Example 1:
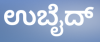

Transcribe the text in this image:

ಉಬೈದ್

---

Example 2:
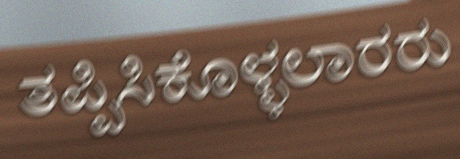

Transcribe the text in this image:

ತಪ್ಪಿಸಿಕೊಳ್ಳಲಾರರು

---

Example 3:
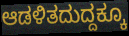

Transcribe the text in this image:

ಆಡಳಿತದುದ್ದಕ್ಕೂ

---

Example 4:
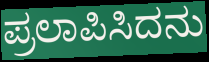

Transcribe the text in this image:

ಪ್ರಲಾಪಿಸಿದನು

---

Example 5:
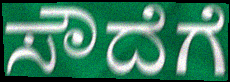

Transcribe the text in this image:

ಸೌದೆಗೆ